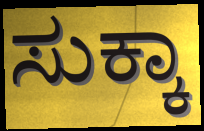
ಸುಕ್ಕಾ